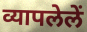
व्यापलेलें